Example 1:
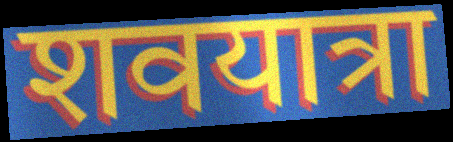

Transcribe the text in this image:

शवयात्रा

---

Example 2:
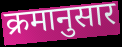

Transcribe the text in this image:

क्रमानुसार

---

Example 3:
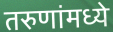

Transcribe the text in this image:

तरुणांमध्ये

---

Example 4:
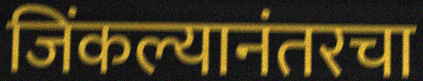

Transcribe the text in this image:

जिंकल्यानंतरचा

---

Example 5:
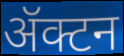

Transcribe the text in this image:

ॲक्टन